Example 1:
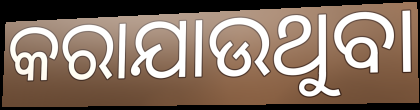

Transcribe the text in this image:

କରାଯାଉଥୁବା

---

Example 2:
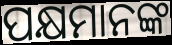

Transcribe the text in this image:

ପକ୍ଷମାନଙ୍କ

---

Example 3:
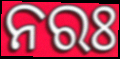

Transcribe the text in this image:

ନରଃ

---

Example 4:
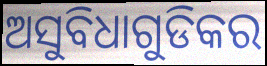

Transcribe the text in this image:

ଅସୁବିଧାଗୁଡିକର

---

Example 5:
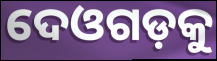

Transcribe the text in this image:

ଦେଓଗଡ଼କୁ